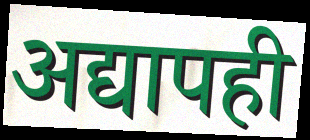
अद्यापही